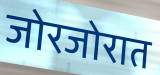
जोरजोरात